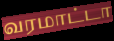
வரமாட்டா